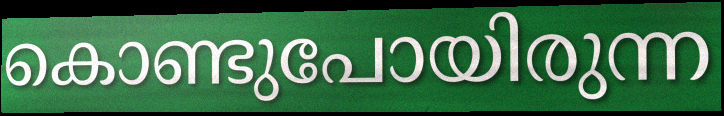
കൊണ്ടുപോയിരുന്ന